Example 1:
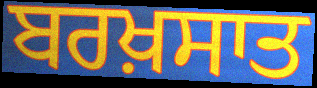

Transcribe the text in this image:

ਬਰਖ਼ਸਾਤ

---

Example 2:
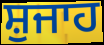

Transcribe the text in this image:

ਸ਼ੁਜਾਹ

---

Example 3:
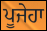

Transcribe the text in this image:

ਪੂਜੇਹਾ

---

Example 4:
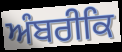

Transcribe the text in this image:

ਅੰਬਰੀਕਿ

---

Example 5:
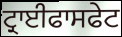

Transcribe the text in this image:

ਟ੍ਰਾਈਫਾਸਫੇਟ